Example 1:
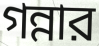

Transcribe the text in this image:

গন্নার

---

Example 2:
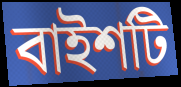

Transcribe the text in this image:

বাইশটি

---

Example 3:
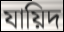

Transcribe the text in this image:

যায়িদ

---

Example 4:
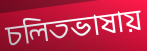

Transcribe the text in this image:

চলিতভাষায়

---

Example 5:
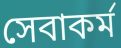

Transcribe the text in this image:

সেবাকর্ম